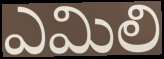
ఎమిలి